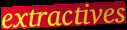
extractives